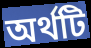
অর্থটি